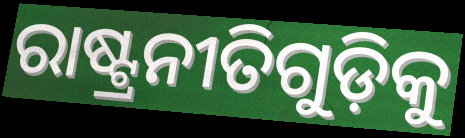
ରାଷ୍ଟ୍ରନୀତିଗୁଡ଼ିକୁ